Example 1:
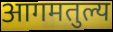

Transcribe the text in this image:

आगमतुल्य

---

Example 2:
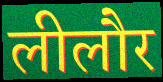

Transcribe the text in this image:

लीलौर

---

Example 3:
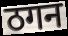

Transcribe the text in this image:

ठगन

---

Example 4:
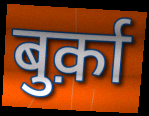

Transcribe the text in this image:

बुर्क़ा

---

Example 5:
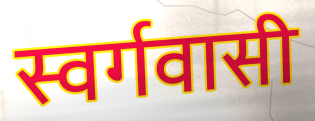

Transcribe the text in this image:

स्वर्गवासी